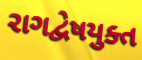
રાગદ્વેષયુક્ત